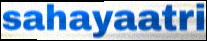
sahayaatri